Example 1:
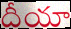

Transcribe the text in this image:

దీయా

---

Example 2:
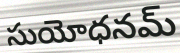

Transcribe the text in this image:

సుయోధనమ్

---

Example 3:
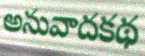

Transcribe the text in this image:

అనువాదకథ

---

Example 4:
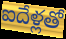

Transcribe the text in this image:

ఐదేళ్లతో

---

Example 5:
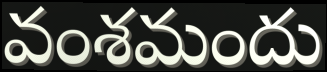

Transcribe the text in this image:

వంశమందు